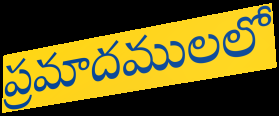
ప్రమాదములలో